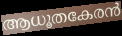
ആധൂതകേരൻ